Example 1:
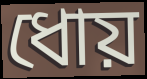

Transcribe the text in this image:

ধোয়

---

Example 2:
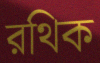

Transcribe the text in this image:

রথিক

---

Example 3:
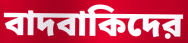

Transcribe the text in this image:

বাদবাকিদের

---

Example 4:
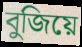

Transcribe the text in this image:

বুজিয়ে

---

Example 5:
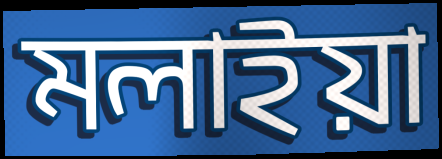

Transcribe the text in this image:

মলাইয়া